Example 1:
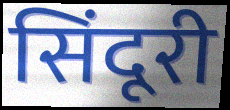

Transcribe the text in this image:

सिंदूरी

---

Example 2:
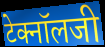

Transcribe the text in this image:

टेक्नॉलजी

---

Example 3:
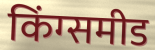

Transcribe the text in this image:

किंग्समीड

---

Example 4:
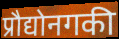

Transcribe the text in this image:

प्रौद्योनगकी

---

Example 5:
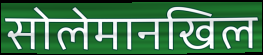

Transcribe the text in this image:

सोलेमानखिल